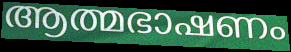
ആത്മഭാഷണം